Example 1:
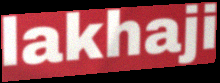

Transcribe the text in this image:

lakhaji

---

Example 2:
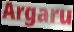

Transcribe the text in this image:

Argaru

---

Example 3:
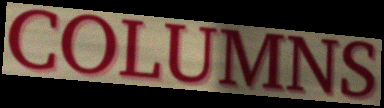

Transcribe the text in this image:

COLUMNS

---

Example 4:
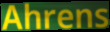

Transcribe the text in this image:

Ahrens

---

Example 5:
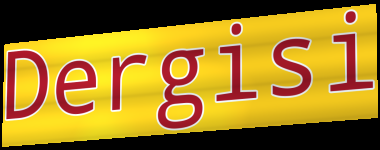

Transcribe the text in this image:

Dergisi